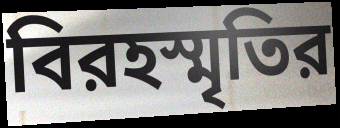
বিরহস্মৃতির